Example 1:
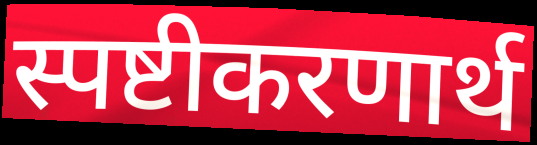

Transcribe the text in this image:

स्पष्टीकरणार्थ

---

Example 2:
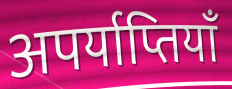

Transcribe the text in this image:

अपर्याप्तियाँ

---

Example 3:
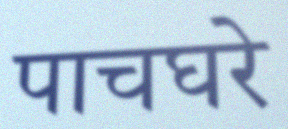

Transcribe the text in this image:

पाचघरे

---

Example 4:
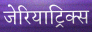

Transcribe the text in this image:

जेरियाट्रिक्स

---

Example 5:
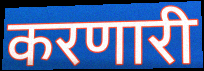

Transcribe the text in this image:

करणारी